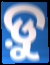
ଡ଼ୁ